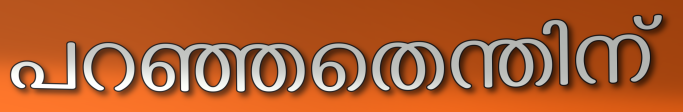
പറഞ്ഞതെന്തിന്